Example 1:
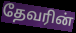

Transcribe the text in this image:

தேவரின்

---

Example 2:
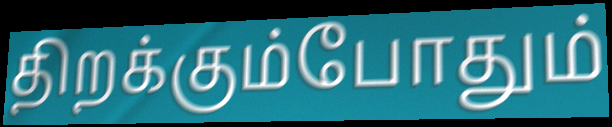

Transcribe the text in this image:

திறக்கும்போதும்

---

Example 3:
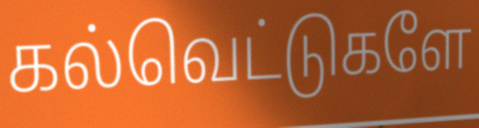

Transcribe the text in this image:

கல்வெட்டுகளே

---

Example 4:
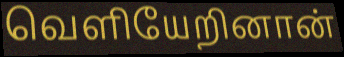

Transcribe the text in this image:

வெளியேறினான்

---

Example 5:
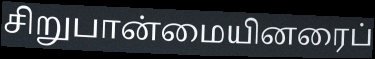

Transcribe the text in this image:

சிறுபான்மையினரைப்